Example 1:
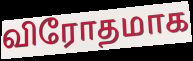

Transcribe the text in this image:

விரோதமாக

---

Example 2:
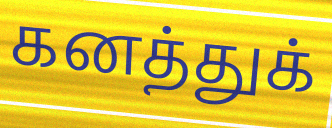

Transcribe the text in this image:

கனத்துக்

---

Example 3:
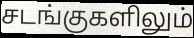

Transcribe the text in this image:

சடங்குகளிலும்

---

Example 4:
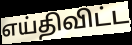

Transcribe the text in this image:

எய்திவிட்ட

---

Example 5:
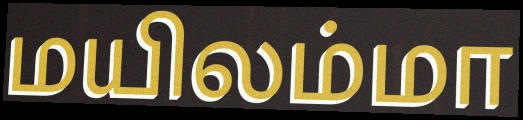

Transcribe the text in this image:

மயிலம்மா